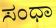
ಸಂಧಾ